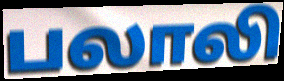
பலாலி